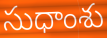
సుధాంశు